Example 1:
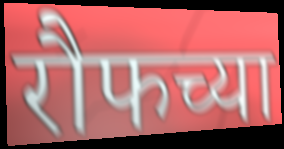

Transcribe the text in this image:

रौफच्या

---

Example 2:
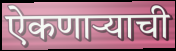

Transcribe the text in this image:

ऐकणार्‍याची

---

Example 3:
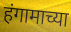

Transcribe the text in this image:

हंगामाच्या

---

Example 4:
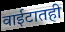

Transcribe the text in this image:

वाईटातही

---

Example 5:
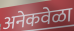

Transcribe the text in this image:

अनेकवेळा